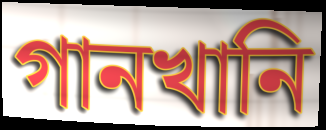
গানখানি